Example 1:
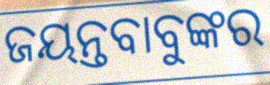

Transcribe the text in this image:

ଜୟନ୍ତବାବୁଙ୍କର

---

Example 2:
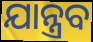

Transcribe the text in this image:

ଯାନ୍ତ୍ରବ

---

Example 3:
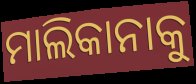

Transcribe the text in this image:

ମାଲିକାନାକୁ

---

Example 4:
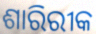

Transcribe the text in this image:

ଶାରିରୀକ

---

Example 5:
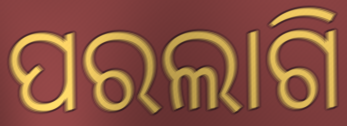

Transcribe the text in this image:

ପରଲାଗି